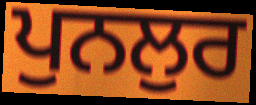
ਪੁਨਲੁਰ